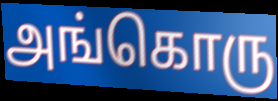
அங்கொரு